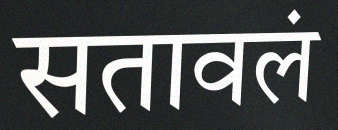
सतावलं